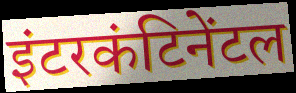
इंटरकंटिनेंटल